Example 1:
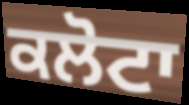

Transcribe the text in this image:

ਕਲੋਟਾ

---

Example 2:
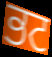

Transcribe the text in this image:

ਭਟ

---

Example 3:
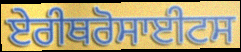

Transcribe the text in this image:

ਏਰੀਥਰੋਸਾਈਟਸ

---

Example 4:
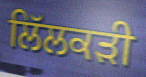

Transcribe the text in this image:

ਲਿੱਲਕੜੀ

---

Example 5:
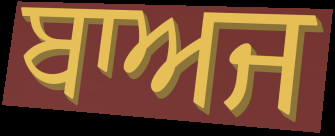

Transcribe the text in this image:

ਬਾਅਜ